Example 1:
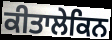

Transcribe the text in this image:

ਕੀਤਾਲੇਕਿਨ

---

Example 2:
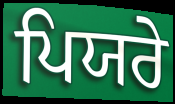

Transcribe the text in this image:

ਪਿਯਰੇ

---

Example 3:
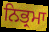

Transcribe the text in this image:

ਨਿਭ੍ਰਮਾ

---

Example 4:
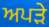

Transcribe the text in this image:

ਅਪੜੇ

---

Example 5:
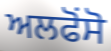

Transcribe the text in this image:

ਅਲਫੋਂਸੋ